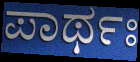
ಪಾರ್ಥಃ